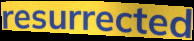
resurrected